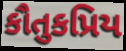
કૌતુકપ્રિય